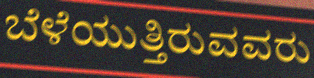
ಬೆಳೆಯುತ್ತಿರುವವರು